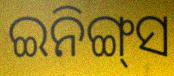
ଇନିଙ୍ଗ୍‌ସ